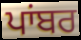
ਪਾਂਬਰ